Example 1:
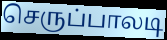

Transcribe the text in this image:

செருப்பாலடி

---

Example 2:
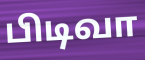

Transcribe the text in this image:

பிடிவா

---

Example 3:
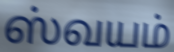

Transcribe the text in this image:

ஸ்வயம்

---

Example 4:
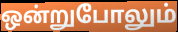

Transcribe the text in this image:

ஒன்றுபோலும்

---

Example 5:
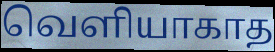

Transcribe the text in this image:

வெளியாகாத